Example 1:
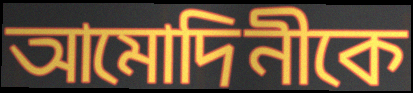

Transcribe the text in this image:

আমোদিনীকে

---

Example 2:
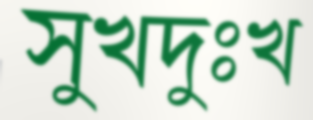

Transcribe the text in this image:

সুখদুঃখ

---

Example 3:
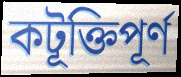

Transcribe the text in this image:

কটূক্তিপূর্ণ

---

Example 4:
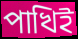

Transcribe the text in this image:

পাখিই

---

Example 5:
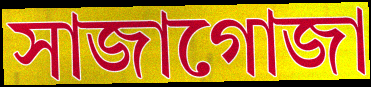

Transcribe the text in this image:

সাজাগোজা